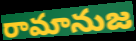
రామానుజ